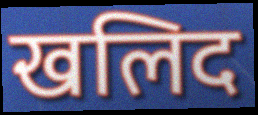
खलिद